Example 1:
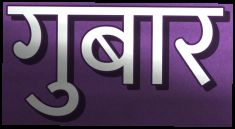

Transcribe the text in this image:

गुबार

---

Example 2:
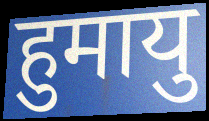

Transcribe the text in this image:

हुमायु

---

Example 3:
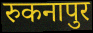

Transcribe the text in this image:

रुकनापुर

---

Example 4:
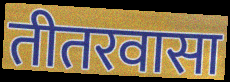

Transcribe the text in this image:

तीतरवासा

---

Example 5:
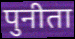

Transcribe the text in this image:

पुनीता